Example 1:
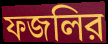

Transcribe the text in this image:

ফজলির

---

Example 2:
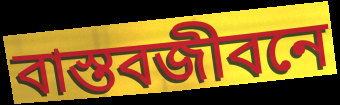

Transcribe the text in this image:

বাস্তবজীবনে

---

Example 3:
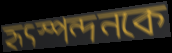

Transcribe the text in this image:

হৃৎস্পন্দনকে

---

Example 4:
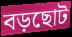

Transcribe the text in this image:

বড়ছোট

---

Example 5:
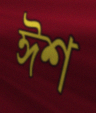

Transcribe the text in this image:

ঈশ